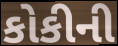
કોકીની